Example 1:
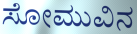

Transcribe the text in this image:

ಸೋಮುವಿನ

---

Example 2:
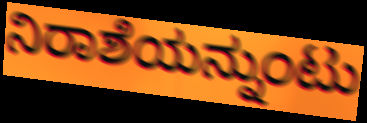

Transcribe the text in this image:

ನಿರಾಶೆಯನ್ನುಂಟು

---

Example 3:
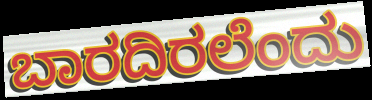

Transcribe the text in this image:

ಬಾರದಿರಲೆಂದು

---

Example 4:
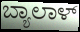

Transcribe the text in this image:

ಬ್ಯಾಲಾಳ್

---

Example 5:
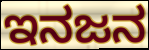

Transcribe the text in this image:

ಇನಜನ